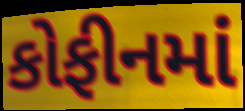
કોફીનમાં